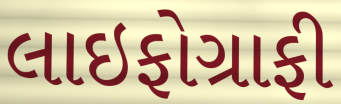
લાઇફોગ્રાફી